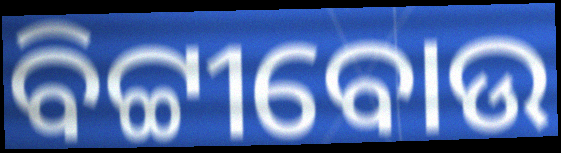
ବିଟ୍ଟୀବୋଉ